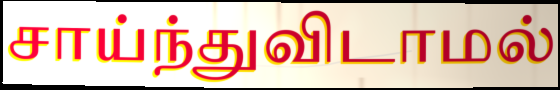
சாய்ந்துவிடாமல்